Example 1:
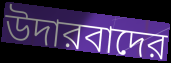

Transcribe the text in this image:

উদারবাদের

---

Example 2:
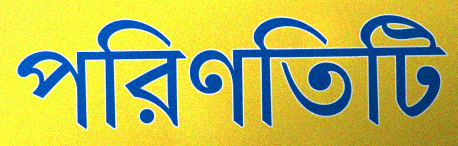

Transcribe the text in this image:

পরিণতিটি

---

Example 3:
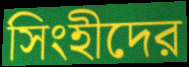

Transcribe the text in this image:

সিংহীদের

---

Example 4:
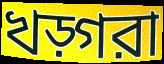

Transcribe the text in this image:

খড়্গরা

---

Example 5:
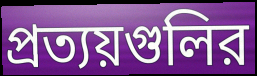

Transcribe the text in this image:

প্রত্যয়গুলির